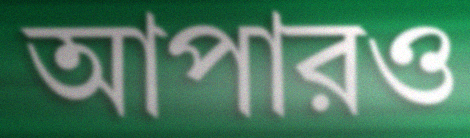
আপারও